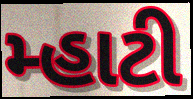
મ્હાટી